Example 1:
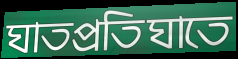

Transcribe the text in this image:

ঘাতপ্রতিঘাতে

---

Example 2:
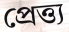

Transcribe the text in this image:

প্রেত্ত্য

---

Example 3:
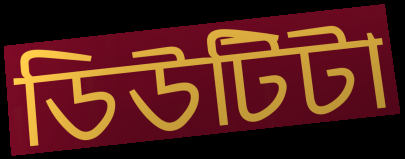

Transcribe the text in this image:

ডিউটিটা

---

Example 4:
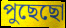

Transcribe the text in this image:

পুছেছো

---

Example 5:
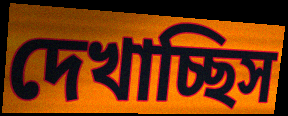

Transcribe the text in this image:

দেখাচ্ছিস